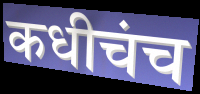
कधीचंच